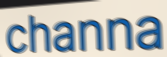
channa